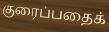
குரைப்பதைக்